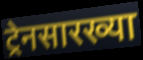
ट्रेनसारख्या